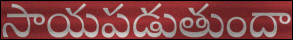
సాయపడుతుందా